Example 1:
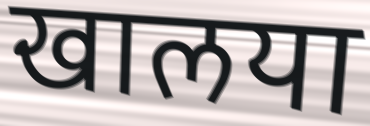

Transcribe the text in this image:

खालया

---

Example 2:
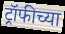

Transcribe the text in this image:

ट्रॉफीच्या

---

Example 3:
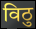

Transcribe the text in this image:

विठु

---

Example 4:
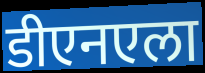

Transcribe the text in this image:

डीएनएला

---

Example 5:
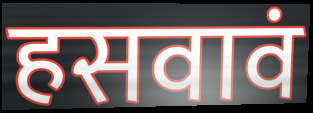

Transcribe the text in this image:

हसवावं